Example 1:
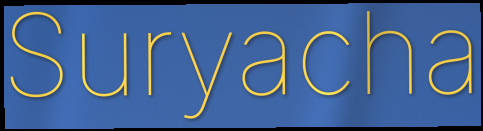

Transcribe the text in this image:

Suryacha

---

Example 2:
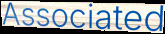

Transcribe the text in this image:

Associated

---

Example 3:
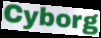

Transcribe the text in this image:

Cyborg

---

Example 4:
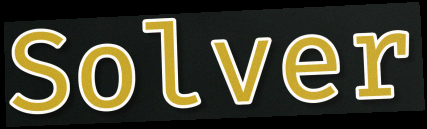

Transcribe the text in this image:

Solver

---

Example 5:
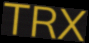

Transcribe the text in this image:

TRX